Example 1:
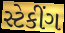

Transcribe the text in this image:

સ્ટેકીંગ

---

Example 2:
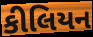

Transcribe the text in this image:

કીલિયન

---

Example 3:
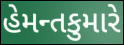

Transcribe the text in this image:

હેમન્તકુમારે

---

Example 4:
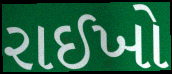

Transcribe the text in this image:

રાઈખો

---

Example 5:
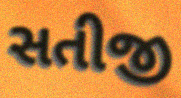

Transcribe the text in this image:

સતીજી